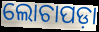
ଲୋଚାପଡ଼ା